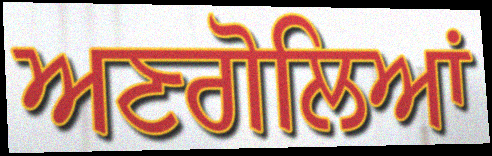
ਅਣਗੋਲਿਆਂ